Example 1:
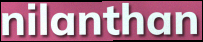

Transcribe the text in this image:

nilanthan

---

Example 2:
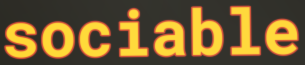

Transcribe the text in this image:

sociable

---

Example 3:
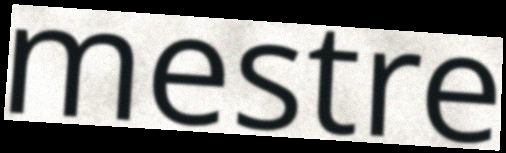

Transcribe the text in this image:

mestre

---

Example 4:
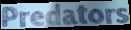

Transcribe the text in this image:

Predators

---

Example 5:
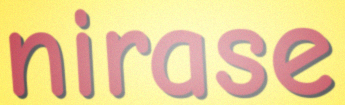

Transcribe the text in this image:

nirase